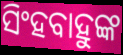
ସିଂହବାହୁଙ୍କ